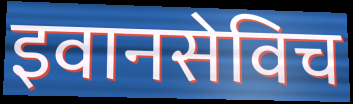
इवानसेविच